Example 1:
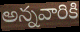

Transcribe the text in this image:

అన్నవారికి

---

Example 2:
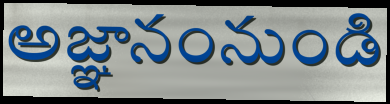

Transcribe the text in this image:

అజ్ఞానంనుండి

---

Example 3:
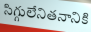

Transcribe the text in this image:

సిగ్గులేనితనానికి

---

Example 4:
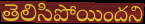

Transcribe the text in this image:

తెలిసిపోయిందని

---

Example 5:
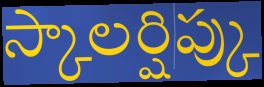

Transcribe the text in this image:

స్కాలర్షిప్కు